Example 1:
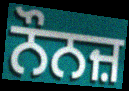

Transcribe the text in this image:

ਨੌਨਜ਼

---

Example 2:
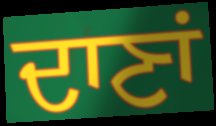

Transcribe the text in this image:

ਦਾਣਾਂ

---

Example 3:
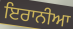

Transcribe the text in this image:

ਇਰਾਨੀਆ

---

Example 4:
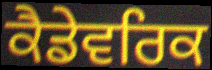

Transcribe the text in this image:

ਕੈਡੇਵਰਿਕ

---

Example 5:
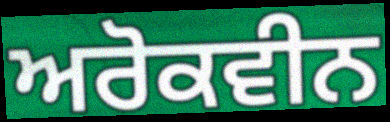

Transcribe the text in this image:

ਅਰੋਕਵੀਨ